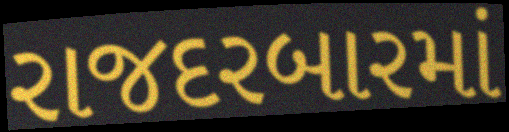
રાજદરબારમાં